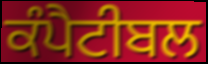
ਕੰਪੈਟੀਬਲ